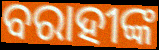
ବରାହୀଙ୍କ